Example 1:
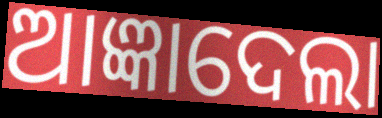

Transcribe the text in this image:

ଆଜ୍ଞାଦେଲା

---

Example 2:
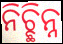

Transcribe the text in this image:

ନିଚ୍ଛିନ୍ନ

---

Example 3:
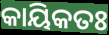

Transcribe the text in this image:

କାୟିକତଃ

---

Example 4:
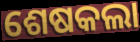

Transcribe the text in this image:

ଶେଷକଲା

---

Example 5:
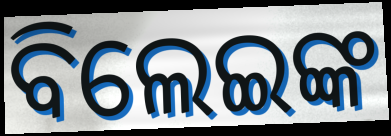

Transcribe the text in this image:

ବିଲେଇଙ୍କ